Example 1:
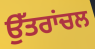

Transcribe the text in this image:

ਉੱਤਰਾਂਚਲ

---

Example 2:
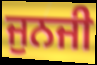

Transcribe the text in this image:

ਜੁਨਜੀ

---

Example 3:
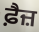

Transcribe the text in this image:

ਫ਼ੈਜ਼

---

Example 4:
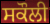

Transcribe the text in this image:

ਸਕੌਲੀ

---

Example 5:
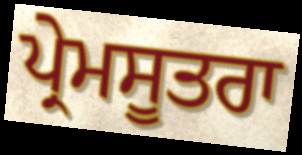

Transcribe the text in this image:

ਪ੍ਰੇਮਸੂਤਰਾ